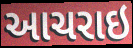
આચરાઇ